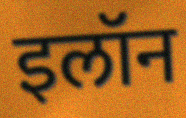
इलॉन